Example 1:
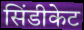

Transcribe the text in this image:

सिंडीकेट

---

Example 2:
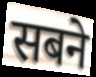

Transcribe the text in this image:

सबने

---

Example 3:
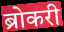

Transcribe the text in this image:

ब्रोकरी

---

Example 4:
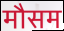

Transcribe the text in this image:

मौसम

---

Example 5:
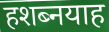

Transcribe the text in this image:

हशब्नयाह